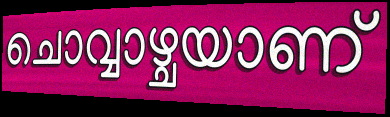
ചൊവ്വാഴ്ചയാണ്